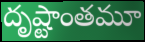
దృష్టాంతమూ